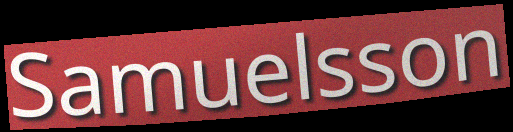
Samuelsson